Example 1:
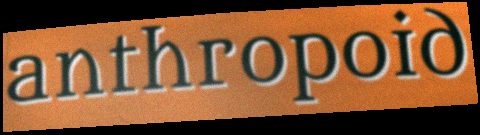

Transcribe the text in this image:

anthropoid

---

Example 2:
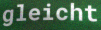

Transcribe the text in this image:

gleicht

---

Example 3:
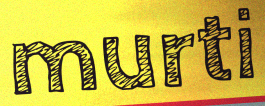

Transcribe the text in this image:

murti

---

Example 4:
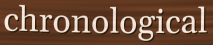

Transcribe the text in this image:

chronological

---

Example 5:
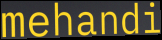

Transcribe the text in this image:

mehandi